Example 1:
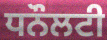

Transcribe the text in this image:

ਧਨੌਲਟੀ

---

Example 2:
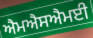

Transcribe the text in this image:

ਐਮਐਸਐਮਈ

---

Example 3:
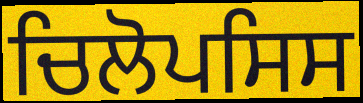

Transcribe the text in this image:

ਚਿਲੋਪਸਿਸ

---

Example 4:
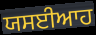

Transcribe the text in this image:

ਯਸਈਆਹ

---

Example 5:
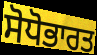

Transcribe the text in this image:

ਸੋਧੋਭਾਰਤ